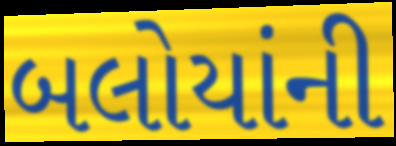
બલોયાંની